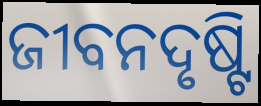
ଜୀବନଦୃଷ୍ଟି